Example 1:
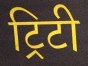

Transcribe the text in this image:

ट्रिटी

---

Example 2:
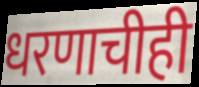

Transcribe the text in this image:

धरणाचीही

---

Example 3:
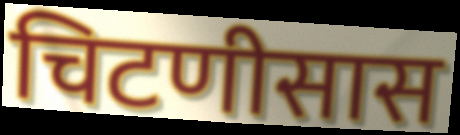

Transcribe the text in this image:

चिटणीसास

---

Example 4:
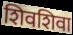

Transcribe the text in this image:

शिवशिवा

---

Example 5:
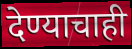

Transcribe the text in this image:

देण्याचाही